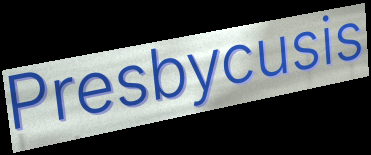
Presbycusis